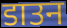
डाउन